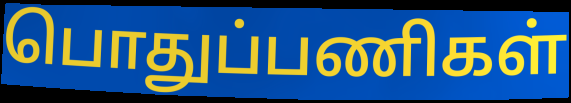
பொதுப்பணிகள்